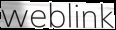
weblink